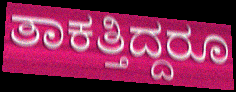
ತಾಕತ್ತಿದ್ದರೂ